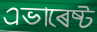
এভাৰেষ্ট